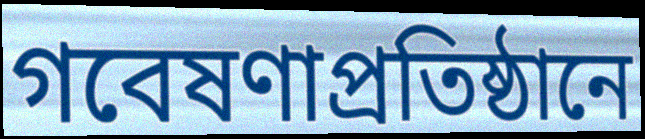
গবেষণাপ্রতিষ্ঠানে